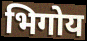
भिगोय